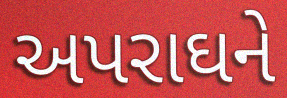
અપરાઘને